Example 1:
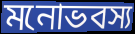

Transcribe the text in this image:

মনোভবস্য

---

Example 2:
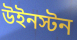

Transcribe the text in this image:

উইনস্টন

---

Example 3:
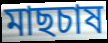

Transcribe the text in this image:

মাছচাষ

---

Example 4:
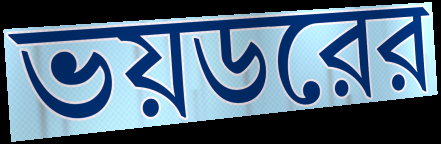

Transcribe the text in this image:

ভয়ডরের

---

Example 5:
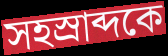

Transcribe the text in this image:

সহস্রাব্দকে